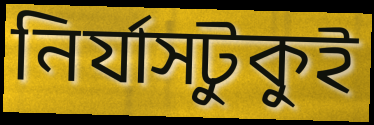
নির্যাসটুকুই